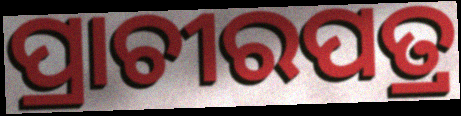
ପ୍ରାଚୀରପତ୍ର